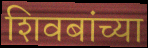
शिवबांच्या